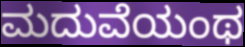
ಮದುವೆಯಂಥ